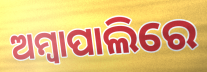
ଅମ୍ବାପାଲିରେ